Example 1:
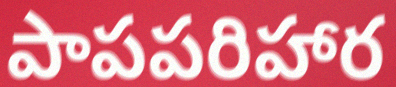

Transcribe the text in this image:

పాపపరిహార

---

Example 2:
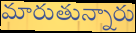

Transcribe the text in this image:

మారుతున్నారు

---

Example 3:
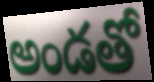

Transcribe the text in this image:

అండతో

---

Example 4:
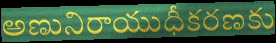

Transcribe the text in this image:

అణునిరాయుధీకరణకు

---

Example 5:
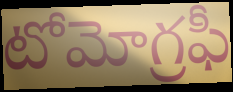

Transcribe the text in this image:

టోమోగ్రఫీ